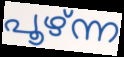
പൂഴ്ന്ന